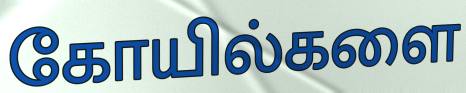
கோயில்களை